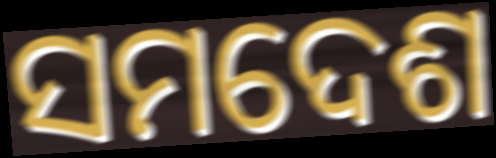
ସମଦେଶ